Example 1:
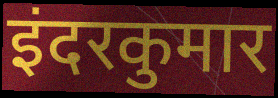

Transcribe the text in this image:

इंदरकुमार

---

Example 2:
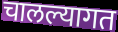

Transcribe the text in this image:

चालल्यागत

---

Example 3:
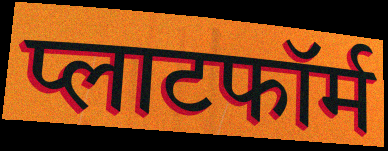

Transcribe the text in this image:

प्लाटफॉर्म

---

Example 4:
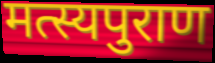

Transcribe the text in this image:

मत्स्यपुराण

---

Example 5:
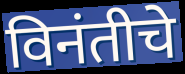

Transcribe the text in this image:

विनंतीचे